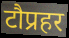
टौप्रहर